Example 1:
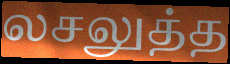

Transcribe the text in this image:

லசலுத்த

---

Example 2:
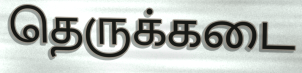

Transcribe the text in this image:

தெருக்கடை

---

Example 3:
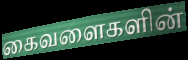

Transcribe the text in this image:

கைவளைகளின்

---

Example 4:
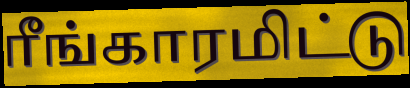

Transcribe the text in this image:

ரீங்காரமிட்டு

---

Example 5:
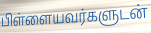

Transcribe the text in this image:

பிள்ளையவர்களுடன்